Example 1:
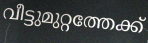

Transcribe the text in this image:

വീട്ടുമുറ്റത്തേക്ക്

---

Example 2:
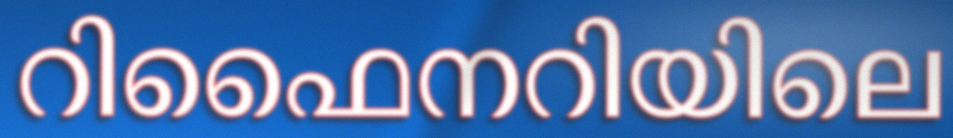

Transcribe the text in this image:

റിഫൈനറിയിലെ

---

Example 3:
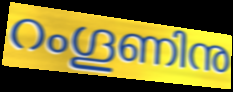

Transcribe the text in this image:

റംഗൂണിനു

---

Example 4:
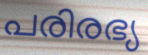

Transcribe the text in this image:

പരിരഭ്യ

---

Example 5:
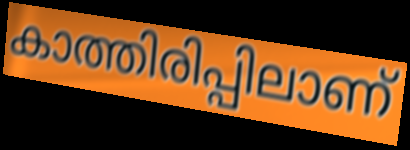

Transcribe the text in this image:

കാത്തിരിപ്പിലാണ്